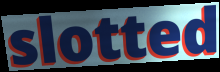
slotted